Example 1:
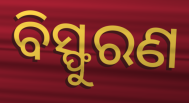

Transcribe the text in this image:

ବିସ୍ଫୁରଣ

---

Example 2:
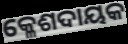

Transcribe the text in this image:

କ୍ଳେଶଦାୟକ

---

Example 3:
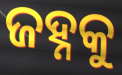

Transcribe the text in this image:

ଜହ୍ନକୁ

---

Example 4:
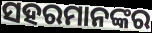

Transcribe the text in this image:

ସହରମାନଙ୍କର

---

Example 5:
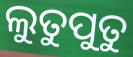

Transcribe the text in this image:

ଲୁତୁପୁତୁ